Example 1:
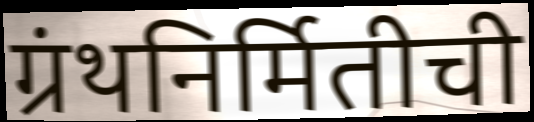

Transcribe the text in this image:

ग्रंथनिर्मितीची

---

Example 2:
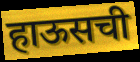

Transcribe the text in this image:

हाऊसची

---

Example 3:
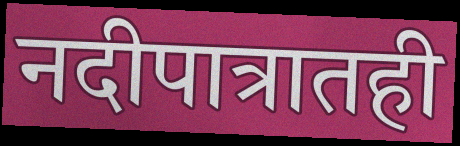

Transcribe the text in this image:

नदीपात्रातही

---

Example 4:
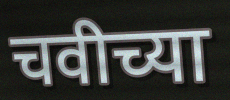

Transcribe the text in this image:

चवीच्या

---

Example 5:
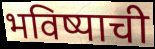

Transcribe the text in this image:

भविष्याची